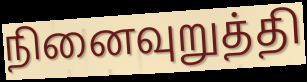
நினைவுறுத்தி